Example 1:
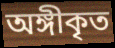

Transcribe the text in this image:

অঙ্গীকৃত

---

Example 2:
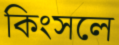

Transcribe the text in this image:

কিংসলে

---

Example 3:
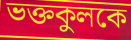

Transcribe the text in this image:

ভক্তকুলকে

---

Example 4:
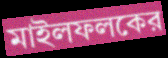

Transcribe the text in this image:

মাইলফলকের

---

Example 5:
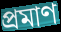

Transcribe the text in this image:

প্রমাণ